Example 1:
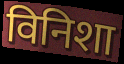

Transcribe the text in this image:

विनिशा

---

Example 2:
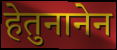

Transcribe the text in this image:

हेतुनानेन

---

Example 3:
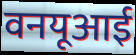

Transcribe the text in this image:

वनयूआई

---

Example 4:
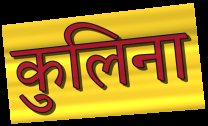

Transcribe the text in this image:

कुलिना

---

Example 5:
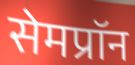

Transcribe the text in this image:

सेमप्रॉन